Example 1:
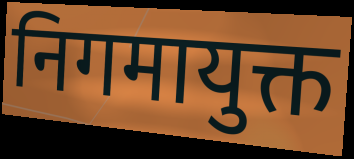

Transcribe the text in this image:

निगमायुक्त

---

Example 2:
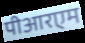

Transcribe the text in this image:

पीआरएम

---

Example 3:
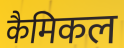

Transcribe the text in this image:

कैमिकल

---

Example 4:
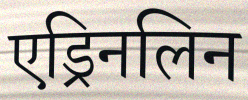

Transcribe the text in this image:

एड्रिनलिन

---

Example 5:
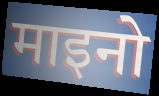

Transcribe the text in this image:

माइनो